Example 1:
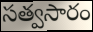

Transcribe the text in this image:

సత్వసారం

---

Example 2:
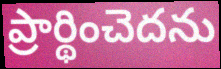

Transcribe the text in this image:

ప్రార్థించెదను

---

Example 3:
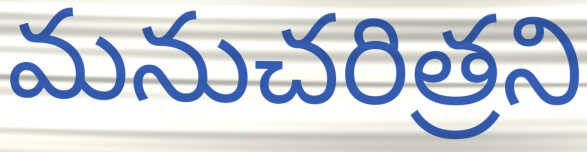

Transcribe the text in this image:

మనుచరిత్రని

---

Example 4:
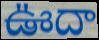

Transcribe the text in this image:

ఊదా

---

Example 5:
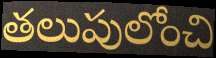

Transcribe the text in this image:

తలుపులోంచి